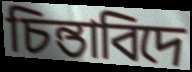
চিন্তাবিদে